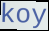
koy